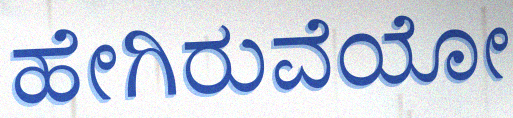
ಹೇಗಿರುವೆಯೋ